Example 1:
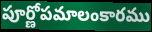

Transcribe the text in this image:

పూర్ణోపమాలంకారము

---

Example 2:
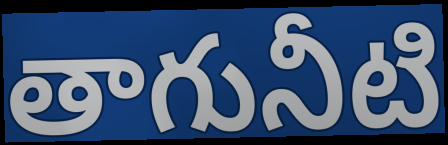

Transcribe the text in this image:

తాగునీటి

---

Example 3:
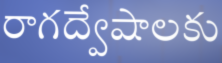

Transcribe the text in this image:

రాగద్వేషాలకు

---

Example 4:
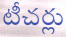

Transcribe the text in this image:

టీచర్లు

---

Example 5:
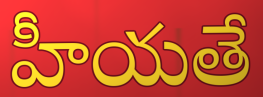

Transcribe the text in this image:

హీయతే